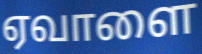
ஏவாளை